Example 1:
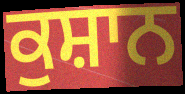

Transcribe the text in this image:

ਕੁਸ਼ਾਨ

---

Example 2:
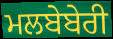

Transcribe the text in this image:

ਮਲਬੇਬੇਰੀ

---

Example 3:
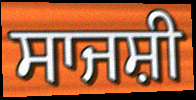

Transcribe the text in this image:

ਸਾਜਸ਼ੀ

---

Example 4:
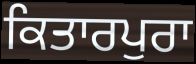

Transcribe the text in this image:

ਕਿਤਾਰਪੁਰਾ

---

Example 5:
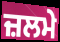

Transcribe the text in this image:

ਜ਼ਲਮੇ